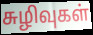
சுழிவுகள்